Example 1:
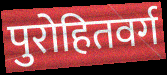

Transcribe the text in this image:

पुरोहितवर्ग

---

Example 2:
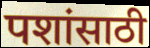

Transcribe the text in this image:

पशांसाठी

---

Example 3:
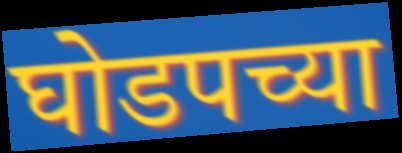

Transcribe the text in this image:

घोडपच्या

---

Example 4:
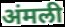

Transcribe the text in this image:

अंमली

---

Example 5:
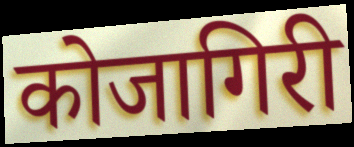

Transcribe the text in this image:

कोजागिरी